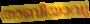
അബീയാവു